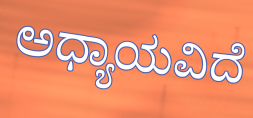
ಅಧ್ಯಾಯವಿದೆ